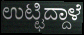
ಉಟ್ಟಿದ್ದಾಳೆ